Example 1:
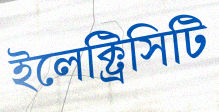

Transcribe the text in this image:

ইলেক্ট্রিসিটি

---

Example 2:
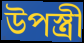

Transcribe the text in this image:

উপস্ত্রী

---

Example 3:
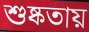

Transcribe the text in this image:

শুষ্কতায়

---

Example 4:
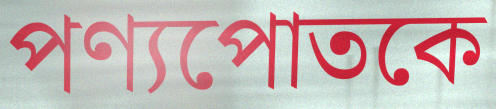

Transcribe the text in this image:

পণ্যপোতকে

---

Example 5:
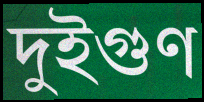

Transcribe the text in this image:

দুইগুণ